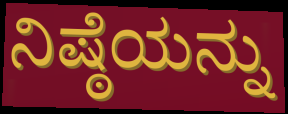
ನಿಷ್ಠೆಯನ್ನು